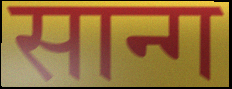
सान्ग